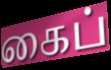
கைப்